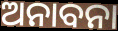
ଅନାବନା